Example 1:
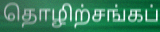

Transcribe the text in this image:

தொழிற்சங்கப்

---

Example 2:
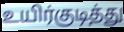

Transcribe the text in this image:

உயிர்குடித்து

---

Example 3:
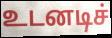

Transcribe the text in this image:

உடனடிச்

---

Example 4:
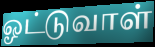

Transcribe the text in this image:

ஓட்டுவாள்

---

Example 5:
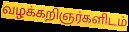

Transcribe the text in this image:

வழக்கறிஞர்களிடம்